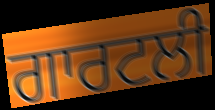
ਗਾਰਟਲੀ